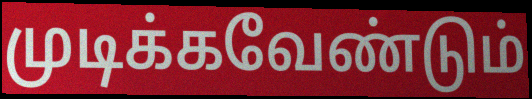
முடிக்கவேண்டும்